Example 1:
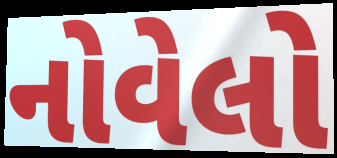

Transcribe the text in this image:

નોવેલો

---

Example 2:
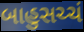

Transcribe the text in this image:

બાહુસચ્ચં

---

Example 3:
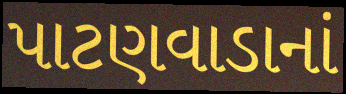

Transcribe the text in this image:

પાટણવાડાનાં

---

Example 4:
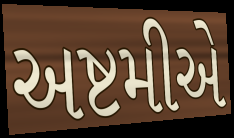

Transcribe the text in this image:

અષ્ટમીએ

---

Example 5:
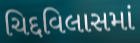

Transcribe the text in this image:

ચિદ્દવિલાસમાં